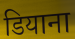
डियाना